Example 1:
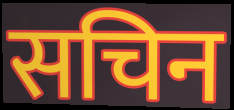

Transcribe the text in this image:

सचिन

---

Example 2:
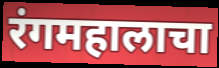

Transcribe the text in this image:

रंगमहालाचा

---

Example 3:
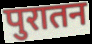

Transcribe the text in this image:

पुरातन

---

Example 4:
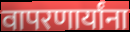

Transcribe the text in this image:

वापरणार्यांना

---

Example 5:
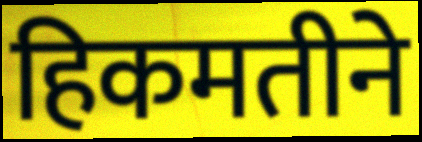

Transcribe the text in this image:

हिकमतीने